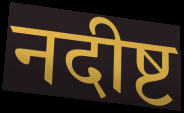
नदीष्ट